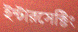
ইন্টারসেক্টিং